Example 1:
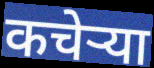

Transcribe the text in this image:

कचेऱ्या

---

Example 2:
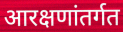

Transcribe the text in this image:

आरक्षणांतर्गत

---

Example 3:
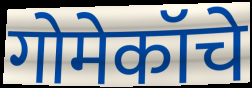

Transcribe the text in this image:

गोमेकॉचे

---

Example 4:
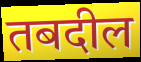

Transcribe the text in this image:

तबदील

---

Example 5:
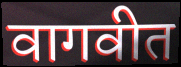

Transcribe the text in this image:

वागवीत